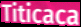
Titicaca